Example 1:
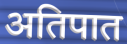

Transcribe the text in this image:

अतिपात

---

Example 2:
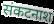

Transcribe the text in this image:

संकटनाश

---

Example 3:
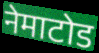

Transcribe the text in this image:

नेमाटोड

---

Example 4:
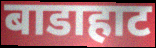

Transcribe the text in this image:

बाडाहाट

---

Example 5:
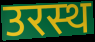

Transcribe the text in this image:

उरस्थ